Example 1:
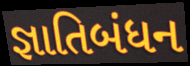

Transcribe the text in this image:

જ્ઞાતિબંધન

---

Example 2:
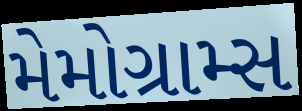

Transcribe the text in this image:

મેમોગ્રામ્સ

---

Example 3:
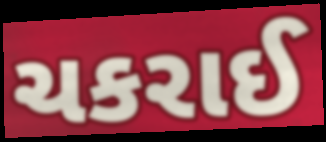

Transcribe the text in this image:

ચકરાઈ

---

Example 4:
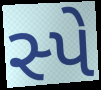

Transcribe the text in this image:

સ્પે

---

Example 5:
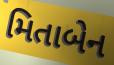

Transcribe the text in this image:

મિતાબેન